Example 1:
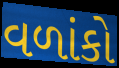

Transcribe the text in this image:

વળાંકો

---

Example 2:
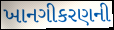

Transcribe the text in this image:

ખાનગીકરણની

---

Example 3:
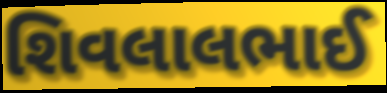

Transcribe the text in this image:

શિવલાલભાઈ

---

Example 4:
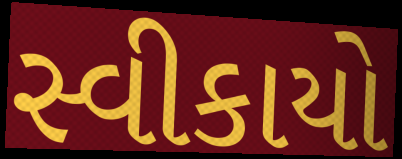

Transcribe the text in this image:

સ્વીકાયો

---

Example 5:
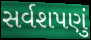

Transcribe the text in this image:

સર્વશપણું